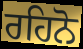
ਰਹਿਨੋ